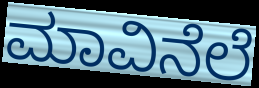
ಮಾವಿನೆಲೆ